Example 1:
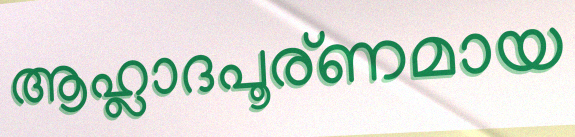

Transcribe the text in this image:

ആഹ്ലാദപൂര്ണമായ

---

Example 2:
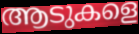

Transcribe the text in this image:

ആടുകളെ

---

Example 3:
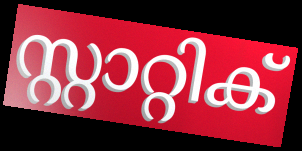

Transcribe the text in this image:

സ്റ്റാറ്റിക്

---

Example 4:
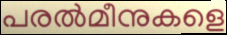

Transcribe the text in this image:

പരൽമീനുകളെ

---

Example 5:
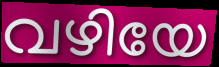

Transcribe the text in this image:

വഴിയേ